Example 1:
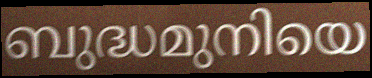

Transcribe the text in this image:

ബുദ്ധമുനിയെ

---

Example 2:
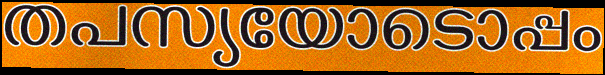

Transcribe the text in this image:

തപസ്യയോടൊപ്പം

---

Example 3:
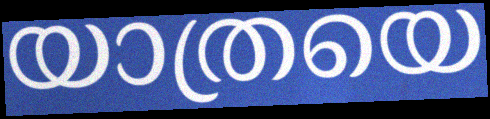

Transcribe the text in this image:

യാത്രയെ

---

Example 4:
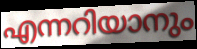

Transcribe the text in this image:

എന്നറിയാനും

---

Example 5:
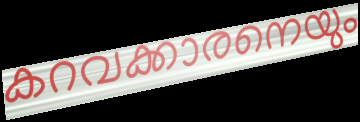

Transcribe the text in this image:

കറവക്കാരനെയും